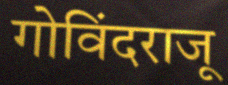
गोविंदराजू